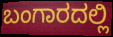
ಬಂಗಾರದಲ್ಲಿ